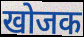
खोजक